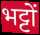
भट्टों